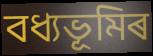
বধ্যভূমিৰ